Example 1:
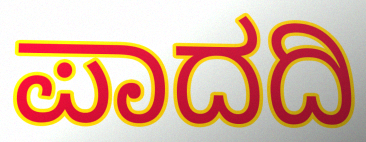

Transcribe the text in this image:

ಪಾದದಿ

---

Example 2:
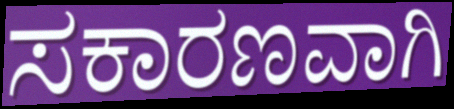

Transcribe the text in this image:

ಸಕಾರಣವಾಗಿ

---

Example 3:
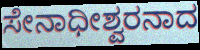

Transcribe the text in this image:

ಸೇನಾಧೀಶ್ವರನಾದ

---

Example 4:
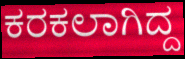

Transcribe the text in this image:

ಕರಕಲಾಗಿದ್ದ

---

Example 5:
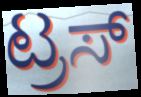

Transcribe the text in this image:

ಟ್ರಸ್